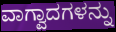
ವಾಗ್ವಾದಗಳನ್ನು